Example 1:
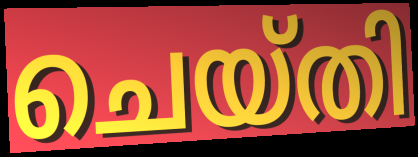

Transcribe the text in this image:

ചെയ്തി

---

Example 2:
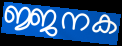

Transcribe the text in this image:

ജ്ജനക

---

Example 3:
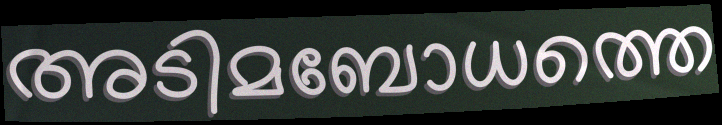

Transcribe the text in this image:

അടിമബോധത്തെ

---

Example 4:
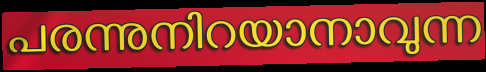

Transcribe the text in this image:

പരന്നുനിറയാനാവുന്ന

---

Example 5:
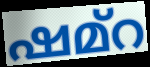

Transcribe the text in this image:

ഷമ്റ